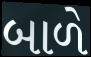
બાળે